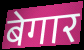
बेगार